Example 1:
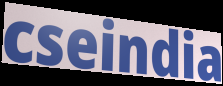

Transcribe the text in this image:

cseindia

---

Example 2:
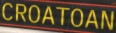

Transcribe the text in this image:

CROATOAN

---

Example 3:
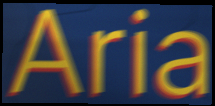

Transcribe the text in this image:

Aria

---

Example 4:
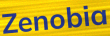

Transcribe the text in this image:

Zenobia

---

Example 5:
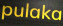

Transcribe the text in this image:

pulaka